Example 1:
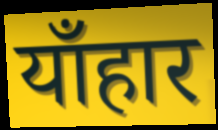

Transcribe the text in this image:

याँहार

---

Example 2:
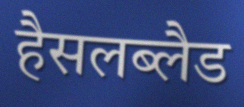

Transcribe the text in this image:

हैसलब्लैड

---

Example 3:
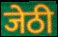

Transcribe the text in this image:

जेठी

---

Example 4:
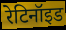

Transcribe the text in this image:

रेटिनॉइड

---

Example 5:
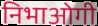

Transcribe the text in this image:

निभाओगी